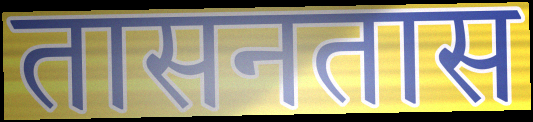
तासनतास